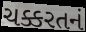
ચક્કરતનં